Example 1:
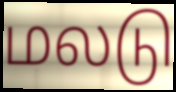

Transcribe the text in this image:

மலடு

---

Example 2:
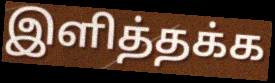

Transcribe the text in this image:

இளித்தக்க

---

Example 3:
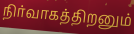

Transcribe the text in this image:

நிர்வாகத்திறனும்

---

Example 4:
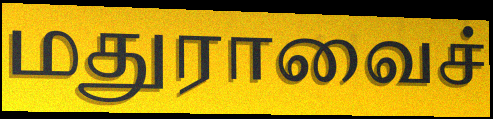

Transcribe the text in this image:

மதுராவைச்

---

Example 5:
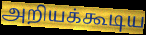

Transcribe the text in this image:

அறியக்கூடிய